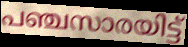
പഞ്ചസാരയിട്ട്